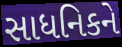
સાધનિકને